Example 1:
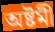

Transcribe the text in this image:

অষ্টমী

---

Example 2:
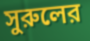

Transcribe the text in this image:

সুরুলের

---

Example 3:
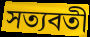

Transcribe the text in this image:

সত্যবতী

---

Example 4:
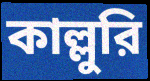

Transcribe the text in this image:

কাল্লুরি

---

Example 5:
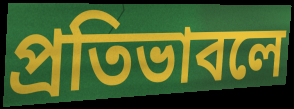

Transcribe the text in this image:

প্রতিভাবলে